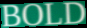
BOLD